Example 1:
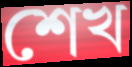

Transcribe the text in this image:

শেখ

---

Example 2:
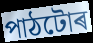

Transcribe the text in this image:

পাঠটোৰ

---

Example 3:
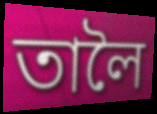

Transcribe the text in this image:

তালৈ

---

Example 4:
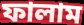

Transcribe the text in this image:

ফালাম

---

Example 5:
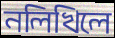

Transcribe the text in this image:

নলিখিলে